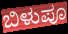
ಬಿಳುಪೂ